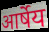
आर्षेय